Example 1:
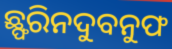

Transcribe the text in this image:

ଛ୍ଫରିନଦୁବନୁଫ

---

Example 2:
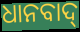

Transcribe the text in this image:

ଧାନବାଦ୍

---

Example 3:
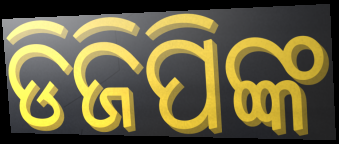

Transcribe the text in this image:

ଡିଜିପିଙ୍କ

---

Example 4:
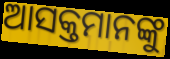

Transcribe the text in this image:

ଆସକ୍ତମାନଙ୍କୁ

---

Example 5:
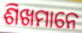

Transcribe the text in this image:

ଶିଖମାନେ